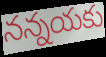
నన్నయకు